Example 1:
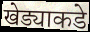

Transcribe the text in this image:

खेड्याकडे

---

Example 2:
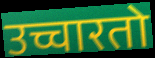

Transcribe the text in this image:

उच्चारतो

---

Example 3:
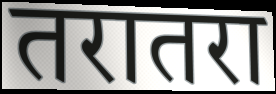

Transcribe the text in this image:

तरातरा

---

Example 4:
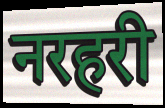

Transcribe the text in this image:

नरहरी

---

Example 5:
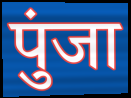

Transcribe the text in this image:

पुंजा